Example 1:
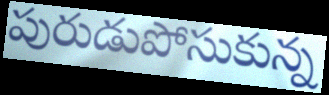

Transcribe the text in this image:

పురుడుపోసుకున్న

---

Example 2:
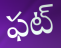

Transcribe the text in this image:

ఫట్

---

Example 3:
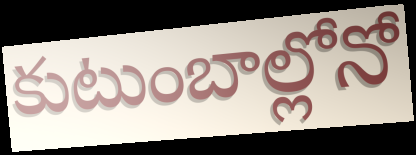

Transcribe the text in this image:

కుటుంబాల్లోనో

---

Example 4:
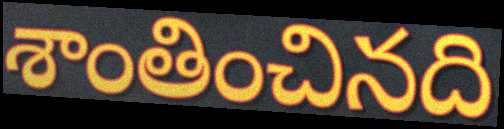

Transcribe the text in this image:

శాంతించినది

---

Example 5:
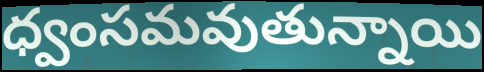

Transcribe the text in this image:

ధ్వంసమవుతున్నాయి